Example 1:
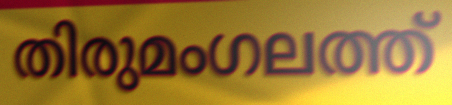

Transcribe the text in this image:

തിരുമംഗലത്ത്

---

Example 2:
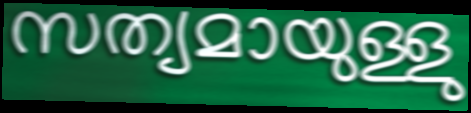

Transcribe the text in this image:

സത്യമായുള്ളു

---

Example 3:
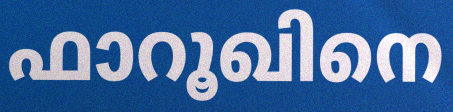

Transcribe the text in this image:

ഫാറൂഖിനെ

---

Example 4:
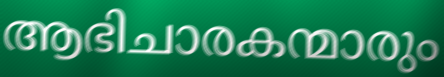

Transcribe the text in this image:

ആഭിചാരകന്മാരും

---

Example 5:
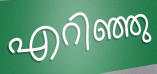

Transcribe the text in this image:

എറിഞ്ഞു